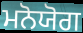
ਮਨੋਯੋਗ